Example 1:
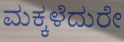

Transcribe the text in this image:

ಮಕ್ಕಳೆದುರೇ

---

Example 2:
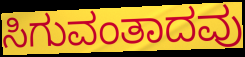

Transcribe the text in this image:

ಸಿಗುವಂತಾದವು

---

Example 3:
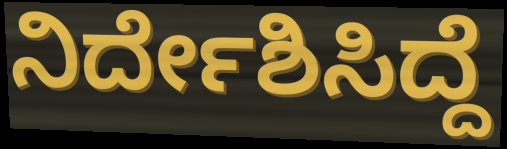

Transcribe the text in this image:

ನಿರ್ದೇಶಿಸಿದ್ದೆ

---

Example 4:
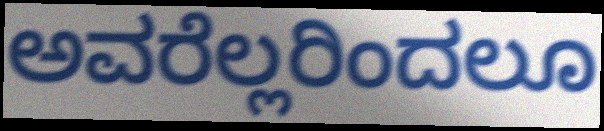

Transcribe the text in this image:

ಅವರೆಲ್ಲರಿಂದಲೂ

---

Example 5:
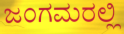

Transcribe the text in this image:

ಜಂಗಮರಲ್ಲಿ